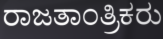
ರಾಜತಾಂತ್ರಿಕರು